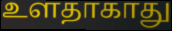
உளதாகாது